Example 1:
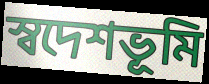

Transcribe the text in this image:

স্বদেশভূমি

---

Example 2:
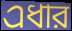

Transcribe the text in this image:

এধার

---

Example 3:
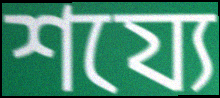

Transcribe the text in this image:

শয্যে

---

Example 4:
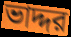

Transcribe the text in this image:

ভাদ্দর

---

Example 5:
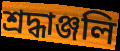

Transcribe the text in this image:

শ্রদ্ধাঞ্জলি